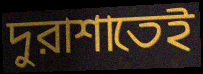
দুরাশাতেই